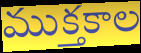
ముక్తకాల